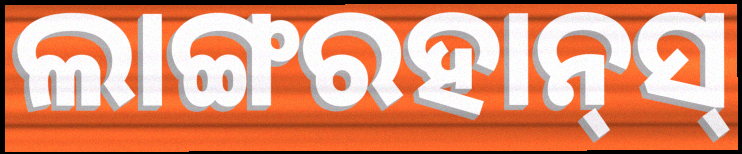
ଲାଙ୍ଗରହାନ୍‌ସ୍